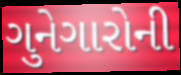
ગુનેગારોની